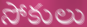
సోకులు